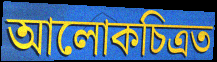
আলোকচিত্ৰত